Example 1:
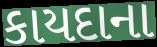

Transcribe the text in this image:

કાયદાના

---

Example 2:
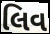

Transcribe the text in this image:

લિવ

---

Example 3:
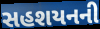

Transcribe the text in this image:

સહશયનની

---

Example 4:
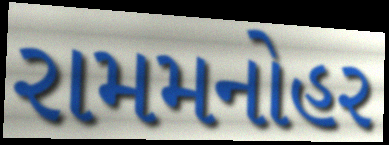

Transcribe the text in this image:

રામમનોહર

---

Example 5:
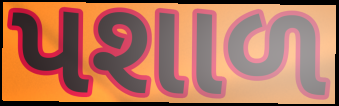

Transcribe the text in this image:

પશાળ